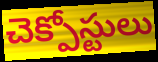
చెక్పోస్టులు